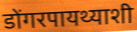
डोंगरपायथ्याशी